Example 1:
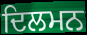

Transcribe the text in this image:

ਦਿਲਮਨ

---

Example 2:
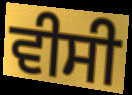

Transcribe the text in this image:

ਵੀਸੀ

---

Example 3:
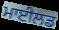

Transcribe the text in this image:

ਮਾਈਲਡ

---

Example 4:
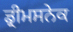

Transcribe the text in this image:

ਡ੍ਰੀਮਸਨੇਕ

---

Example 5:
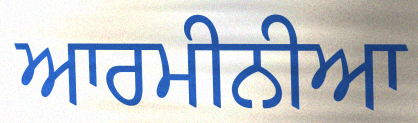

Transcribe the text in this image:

ਆਰਮੀਨੀਆ